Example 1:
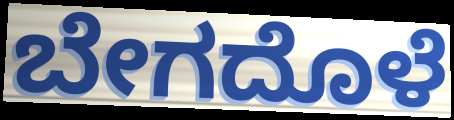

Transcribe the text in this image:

ಬೇಗದೊಳೆ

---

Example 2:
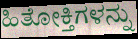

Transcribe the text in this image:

ಹಿತೋಕ್ತಿಗಳನ್ನು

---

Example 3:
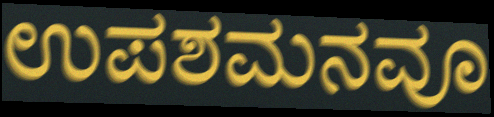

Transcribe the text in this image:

ಉಪಶಮನವೂ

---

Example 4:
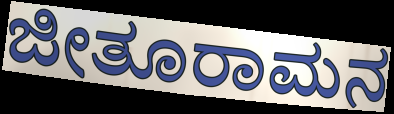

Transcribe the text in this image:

ಜೀತೂರಾಮನ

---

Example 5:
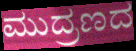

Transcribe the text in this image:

ಮುದ್ರಣದ